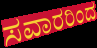
ಸವಾರರಿಂದ